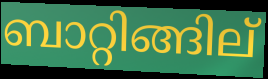
ബാറ്റിങ്ങില്